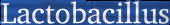
Lactobacillus